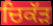
ਚਿਕੱੜ